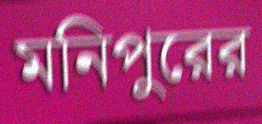
মনিপুরের